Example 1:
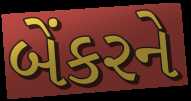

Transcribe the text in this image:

બેંકરને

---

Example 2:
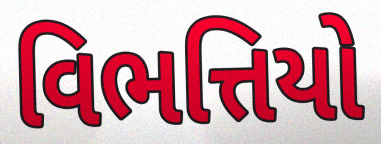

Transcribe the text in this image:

વિભત્તિયો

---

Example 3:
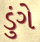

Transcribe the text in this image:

ડુંગે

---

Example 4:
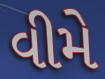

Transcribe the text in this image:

વીમે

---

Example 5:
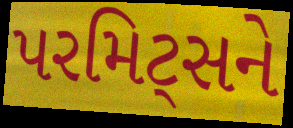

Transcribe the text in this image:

પરમિટ્સને